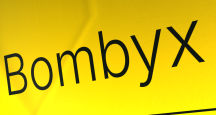
Bombyx